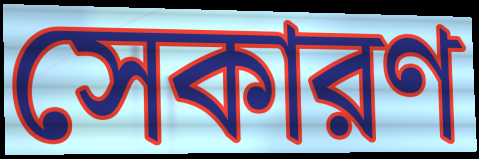
সেকারণ